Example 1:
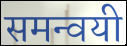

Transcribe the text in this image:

समन्वयी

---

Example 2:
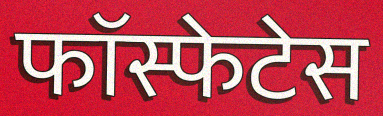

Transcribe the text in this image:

फॉस्फेटेस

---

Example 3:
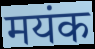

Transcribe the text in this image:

मयंक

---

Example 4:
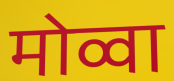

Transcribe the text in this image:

मोव्वा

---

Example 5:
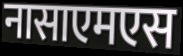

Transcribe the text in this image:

नासाएमएस